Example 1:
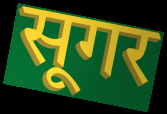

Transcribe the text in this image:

सूगर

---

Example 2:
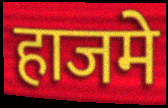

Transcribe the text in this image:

हाजमे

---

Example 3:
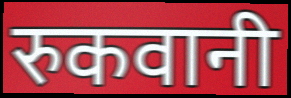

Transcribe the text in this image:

रुकवानी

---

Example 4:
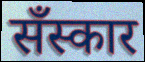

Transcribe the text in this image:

सँस्कार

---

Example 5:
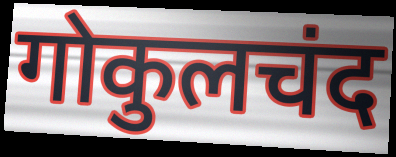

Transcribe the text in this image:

गोकुलचंद